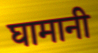
घामानी